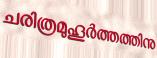
ചരിത്രമുഹൂർത്തത്തിനു